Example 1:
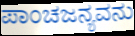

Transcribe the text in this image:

ಪಾಂಚಜನ್ಯವನು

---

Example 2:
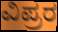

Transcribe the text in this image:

ವಿಪ್ರರ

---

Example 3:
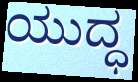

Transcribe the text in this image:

ಯುದ್ಧ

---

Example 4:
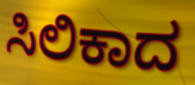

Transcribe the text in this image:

ಸಿಲಿಕಾದ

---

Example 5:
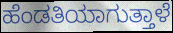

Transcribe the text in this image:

ಹೆಂಡತಿಯಾಗುತ್ತಾಳೆ